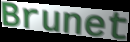
Brunet